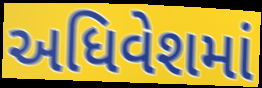
અધિવેશમાં